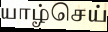
யாழ்செய்